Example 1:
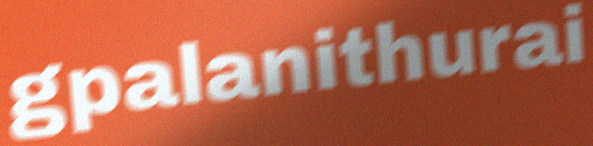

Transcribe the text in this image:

gpalanithurai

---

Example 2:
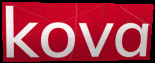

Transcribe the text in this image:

kova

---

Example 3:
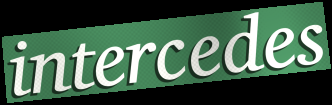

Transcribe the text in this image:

intercedes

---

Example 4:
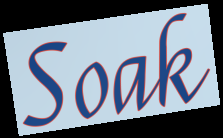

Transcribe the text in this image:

Soak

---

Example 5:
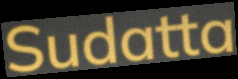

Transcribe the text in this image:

Sudatta